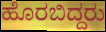
ಹೊರಬಿದ್ದರು